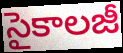
సైకాలజీ